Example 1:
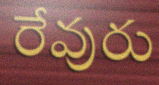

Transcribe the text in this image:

రేవురు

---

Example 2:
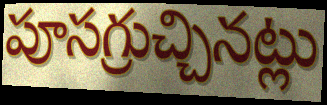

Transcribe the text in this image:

పూసగ్రుచ్చినట్లు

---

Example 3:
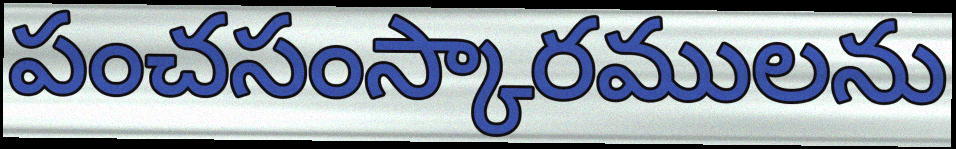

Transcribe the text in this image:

పంచసంస్కారములను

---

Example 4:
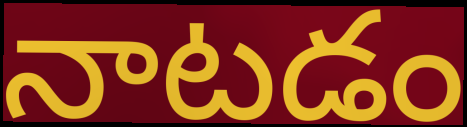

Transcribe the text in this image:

నాటడం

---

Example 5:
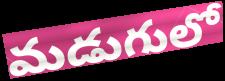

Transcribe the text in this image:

మడుగులో